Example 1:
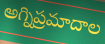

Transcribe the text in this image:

అగ్నిప్రమాదాల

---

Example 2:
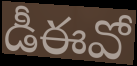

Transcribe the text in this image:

డీఈవో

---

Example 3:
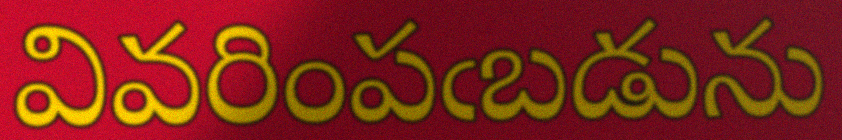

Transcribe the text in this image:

వివరింపఁబడును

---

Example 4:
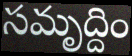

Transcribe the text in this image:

సమృద్దిం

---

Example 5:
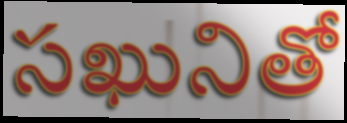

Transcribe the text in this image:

సఖునితో